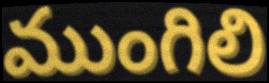
ముంగిలి